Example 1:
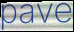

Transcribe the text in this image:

pave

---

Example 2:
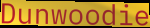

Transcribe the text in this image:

Dunwoodie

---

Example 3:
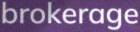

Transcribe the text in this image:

brokerage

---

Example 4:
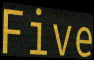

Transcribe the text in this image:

Five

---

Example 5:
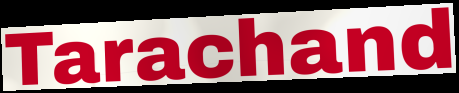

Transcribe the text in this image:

Tarachand